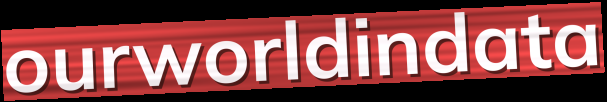
ourworldindata